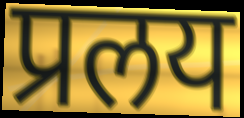
प्रलय